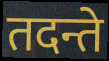
तदन्ते